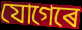
যোগেৰে